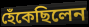
হেঁকেছিলেন